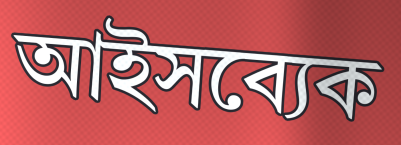
আইসব্যেক